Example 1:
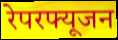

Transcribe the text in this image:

रेपरफ्यूजन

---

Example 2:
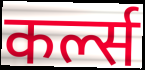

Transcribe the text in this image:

कर्ल्स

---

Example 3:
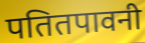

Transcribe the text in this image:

पतितपावनी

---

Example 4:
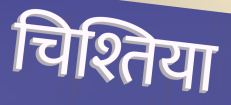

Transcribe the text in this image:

चिश्तिया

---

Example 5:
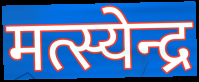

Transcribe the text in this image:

मत्स्येन्द्र